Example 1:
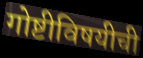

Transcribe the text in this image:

गोष्टीविषयीची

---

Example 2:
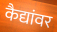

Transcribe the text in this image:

कैद्यांवर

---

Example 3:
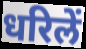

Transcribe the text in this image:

धरिलें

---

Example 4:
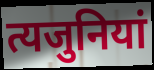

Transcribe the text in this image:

त्यजुनियां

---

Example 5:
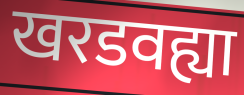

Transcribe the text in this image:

खरडवह्या